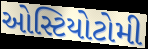
ઓસ્ટિયોટોમી